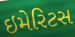
ઇમેરિટસ